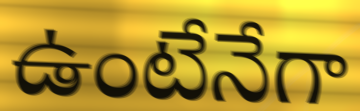
ఉంటేనేగా